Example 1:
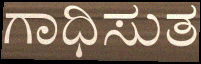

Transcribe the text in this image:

ಗಾಧಿಸುತ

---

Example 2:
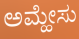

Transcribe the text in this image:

ಅಮ್ಹೇಸು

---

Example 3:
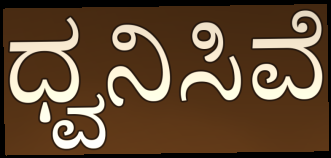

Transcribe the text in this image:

ಧ್ವನಿಸಿವೆ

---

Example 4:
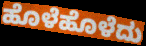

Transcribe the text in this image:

ಹೊಳೆಹೊಳೆದು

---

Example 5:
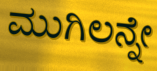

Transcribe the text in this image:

ಮುಗಿಲನ್ನೇ